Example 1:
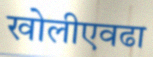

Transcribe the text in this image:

खोलीएवढा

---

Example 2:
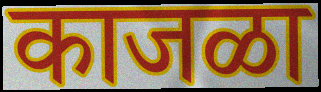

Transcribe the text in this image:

काजळा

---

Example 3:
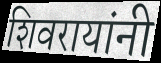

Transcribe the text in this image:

शिवरायांनी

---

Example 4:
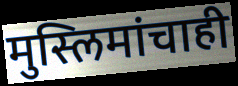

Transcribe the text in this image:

मुस्लिमांचाही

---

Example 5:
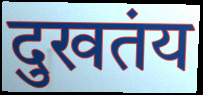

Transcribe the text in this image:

दुखतंय